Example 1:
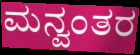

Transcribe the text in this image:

ಮನ್ವಂತರ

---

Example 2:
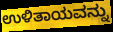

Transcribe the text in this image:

ಉಳಿತಾಯವನ್ನು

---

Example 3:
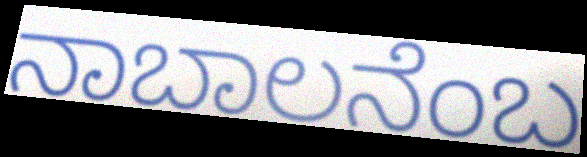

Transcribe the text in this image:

ನಾಬಾಲನೆಂಬ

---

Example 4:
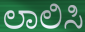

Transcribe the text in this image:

ಲಾಲಿಸಿ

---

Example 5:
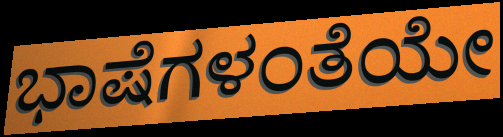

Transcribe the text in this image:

ಭಾಷೆಗಳಂತೆಯೇ